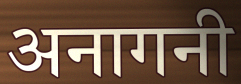
अनागनी